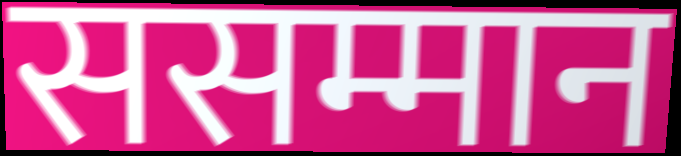
ससम्मान